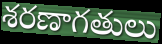
శరణాగతులు